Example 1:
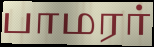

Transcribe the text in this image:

பாமரர்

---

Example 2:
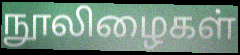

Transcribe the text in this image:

நூலிழைகள்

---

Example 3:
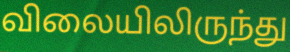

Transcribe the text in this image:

விலையிலிருந்து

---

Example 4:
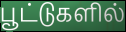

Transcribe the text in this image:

பூட்டுகளில்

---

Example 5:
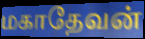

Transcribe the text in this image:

மகாதேவன்